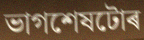
ভাগশেষটোৰ